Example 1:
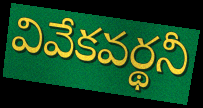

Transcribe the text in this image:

వివేకవర్థనీ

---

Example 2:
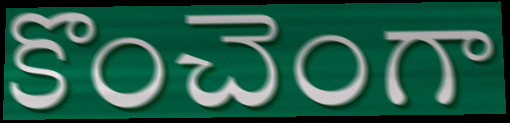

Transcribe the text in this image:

కొంచెంగా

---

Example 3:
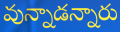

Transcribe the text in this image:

వున్నాడన్నారు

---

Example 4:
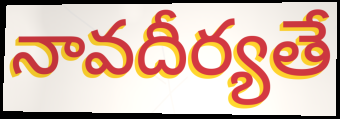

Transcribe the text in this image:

నావదీర్యతే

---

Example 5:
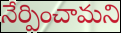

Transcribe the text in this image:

నేర్పించామని